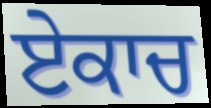
ਏਕਾਚ